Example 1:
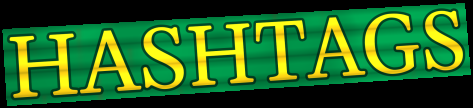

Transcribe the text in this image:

HASHTAGS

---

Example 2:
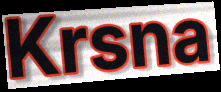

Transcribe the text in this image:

Krsna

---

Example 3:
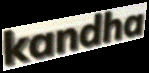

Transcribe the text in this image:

kandha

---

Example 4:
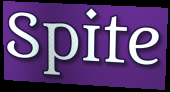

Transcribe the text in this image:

Spite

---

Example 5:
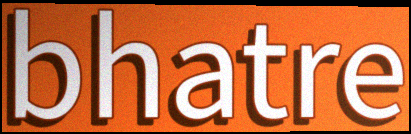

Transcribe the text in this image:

bhatre